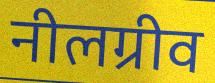
नीलग्रीव